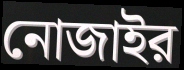
নোজাইর